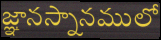
జ్ఞానస్నానములో